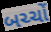
બચ્ચોં